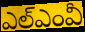
ఎల్ఎంవీ